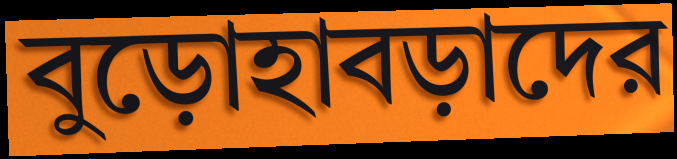
বুড়োহাবড়াদের